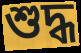
শুদ্ধ